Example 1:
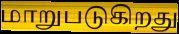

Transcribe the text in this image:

மாறுபடுகிறது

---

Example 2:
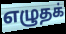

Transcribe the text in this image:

எழுதக்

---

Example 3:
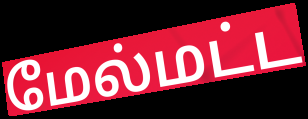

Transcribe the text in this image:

மேல்மட்ட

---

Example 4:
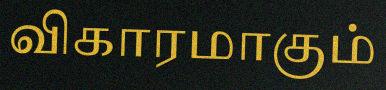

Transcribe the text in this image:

விகாரமாகும்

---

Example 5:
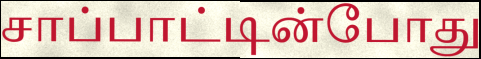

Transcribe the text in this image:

சாப்பாட்டின்போது